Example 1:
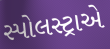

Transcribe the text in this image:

સ્પોલસ્ટ્રાએ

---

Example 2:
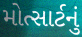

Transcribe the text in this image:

મોત્સાર્ટનું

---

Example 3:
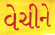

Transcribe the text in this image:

વેચીને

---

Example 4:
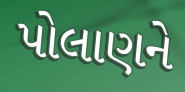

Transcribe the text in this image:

પોલાણને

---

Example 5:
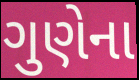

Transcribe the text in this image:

ગુણેના